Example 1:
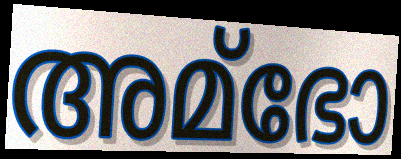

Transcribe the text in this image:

അമ്ഭോ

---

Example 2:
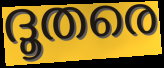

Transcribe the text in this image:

ദൂതരെ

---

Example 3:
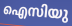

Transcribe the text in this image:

ഐസിയു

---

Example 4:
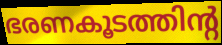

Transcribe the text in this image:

ഭരണകൂടത്തിന്റ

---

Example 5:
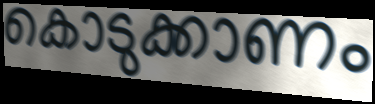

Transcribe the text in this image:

കൊടുക്കാണം